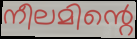
നീലമിന്റെ